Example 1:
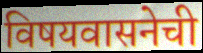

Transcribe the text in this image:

विषयवासनेची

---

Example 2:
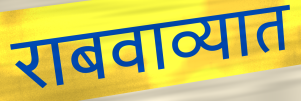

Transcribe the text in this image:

राबवाव्यात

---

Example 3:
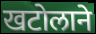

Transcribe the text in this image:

खटोलाने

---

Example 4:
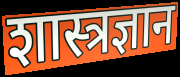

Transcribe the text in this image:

शास्त्रज्ञान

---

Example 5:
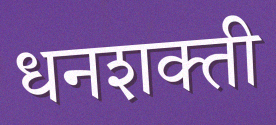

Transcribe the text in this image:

धनशक्ती